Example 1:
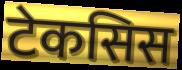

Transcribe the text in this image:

टेकसिस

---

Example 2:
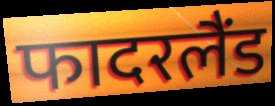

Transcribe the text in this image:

फादरलैंड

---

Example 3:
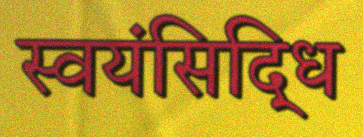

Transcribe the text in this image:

स्वयंसिद्धि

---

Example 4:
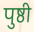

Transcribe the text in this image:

पुष्ठी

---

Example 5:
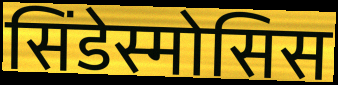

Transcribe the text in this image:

सिंडेस्मोसिस